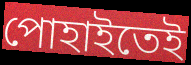
পোহাইতেই